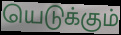
யெடுக்கும்